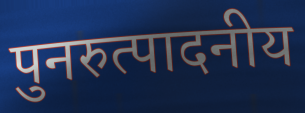
पुनरुत्पादनीय